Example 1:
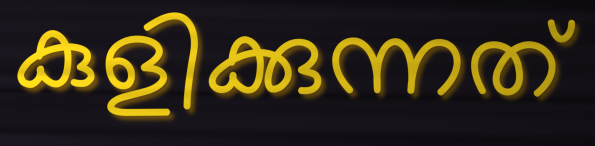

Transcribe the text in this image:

കുളിക്കുന്നത്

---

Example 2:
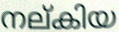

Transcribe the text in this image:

നല്കിയ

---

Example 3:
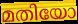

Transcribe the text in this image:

മതിയോ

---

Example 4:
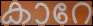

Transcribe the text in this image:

കാറേ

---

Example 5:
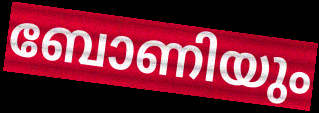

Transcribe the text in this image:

ബോണിയും